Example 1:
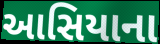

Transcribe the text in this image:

આસિયાના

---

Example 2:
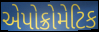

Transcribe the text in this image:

એપોક્રોમેટિક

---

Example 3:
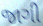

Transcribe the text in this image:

જાગી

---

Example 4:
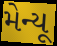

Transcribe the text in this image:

મેન્યૂ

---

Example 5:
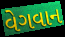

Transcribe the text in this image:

વેગવાન